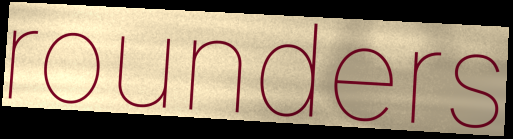
rounders